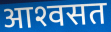
आश्वसत